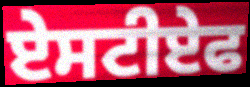
ਏਸਟੀਏਫ